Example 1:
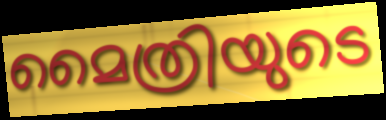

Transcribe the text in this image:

മൈത്രിയുടെ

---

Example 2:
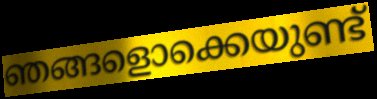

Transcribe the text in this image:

ഞങ്ങളൊക്കെയുണ്ട്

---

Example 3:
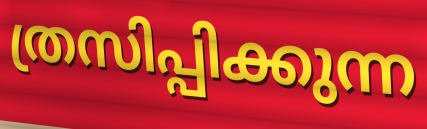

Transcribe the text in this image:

ത്രസിപ്പിക്കുന്ന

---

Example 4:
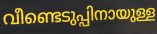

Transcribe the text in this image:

വീണ്ടെടുപ്പിനായുള്ള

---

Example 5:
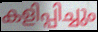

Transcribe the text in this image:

കളിപ്പിച്ചും